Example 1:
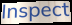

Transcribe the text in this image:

Inspect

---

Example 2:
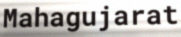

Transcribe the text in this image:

Mahagujarat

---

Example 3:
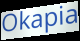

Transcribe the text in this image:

Okapia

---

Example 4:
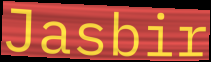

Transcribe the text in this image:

Jasbir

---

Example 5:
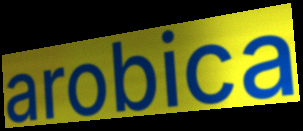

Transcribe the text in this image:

arobica